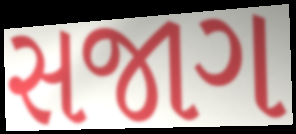
સજાગ